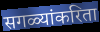
सगळ्यांकरिता